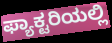
ಫ್ಯಾಕ್ಟರಿಯಲ್ಲಿ